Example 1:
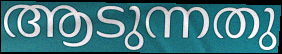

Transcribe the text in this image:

ആടുന്നതു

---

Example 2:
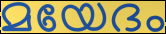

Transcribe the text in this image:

മയേദം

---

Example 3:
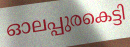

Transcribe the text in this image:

ഓലപ്പുരകെട്ടി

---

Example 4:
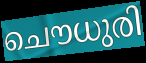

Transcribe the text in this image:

ചൌധുരി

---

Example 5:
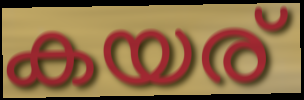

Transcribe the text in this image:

കയര്